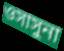
ওসাসুনা